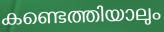
കണ്ടെത്തിയാലും